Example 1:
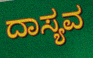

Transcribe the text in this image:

ದಾಸ್ಯವ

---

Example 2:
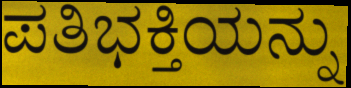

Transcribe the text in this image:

ಪತಿಭಕ್ತಿಯನ್ನು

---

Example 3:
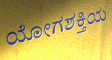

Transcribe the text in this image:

ಯೋಗಶಕ್ತಿಯ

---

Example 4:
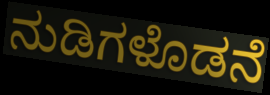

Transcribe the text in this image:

ನುಡಿಗಳೊಡನೆ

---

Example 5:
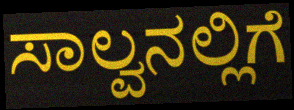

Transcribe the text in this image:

ಸಾಲ್ವನಲ್ಲಿಗೆ